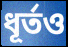
ধূর্তও